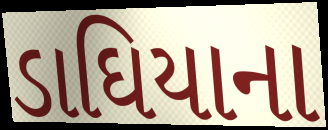
ડાઘિયાના